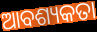
ଆବଶ୍ୟକତା